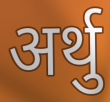
अर्थु